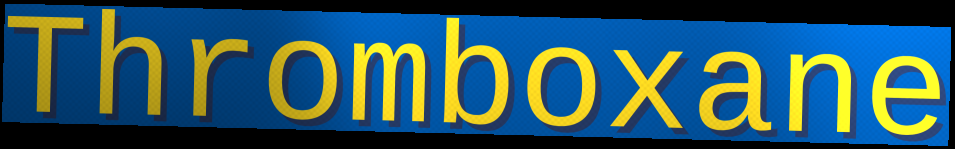
Thromboxane